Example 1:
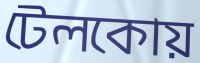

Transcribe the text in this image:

টেলকোয়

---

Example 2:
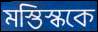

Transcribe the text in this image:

মস্তিস্ককে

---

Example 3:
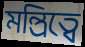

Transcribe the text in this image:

মন্ত্রিত্বে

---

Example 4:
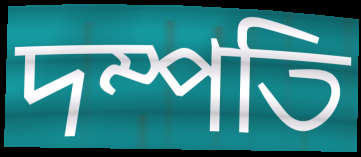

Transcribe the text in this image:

দম্পতি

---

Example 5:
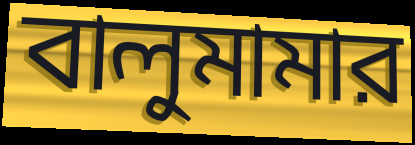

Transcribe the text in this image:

বালুমামার